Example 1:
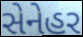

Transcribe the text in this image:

સેનેહર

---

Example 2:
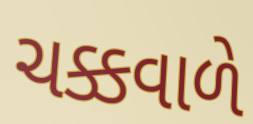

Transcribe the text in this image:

ચક્કવાળે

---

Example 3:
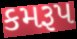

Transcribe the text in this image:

કમરૂપ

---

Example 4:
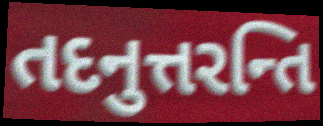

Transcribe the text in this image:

તદનુત્તરન્તિ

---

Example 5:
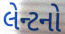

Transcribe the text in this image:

લેન્ટનો